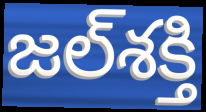
జల్‌శక్తి